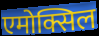
एमोक्सिल